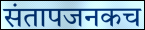
संतापजनकच